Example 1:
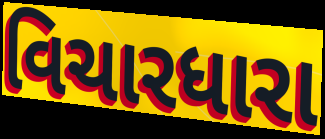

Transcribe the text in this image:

વિચારધારા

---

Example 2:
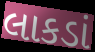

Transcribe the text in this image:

લાકડાં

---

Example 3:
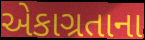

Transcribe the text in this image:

એકાગ્રતાના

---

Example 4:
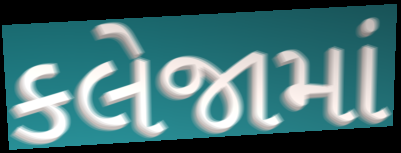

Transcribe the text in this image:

કલેજામાં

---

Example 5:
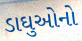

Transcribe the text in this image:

ડાઘુઓનો